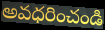
అవధరించండి